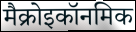
मैक्रोइकॉनमिक